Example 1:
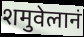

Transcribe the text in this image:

शमुवेलानं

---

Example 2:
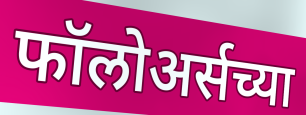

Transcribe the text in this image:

फॉलोअर्सच्या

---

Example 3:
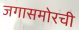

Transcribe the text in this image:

जगासमोरची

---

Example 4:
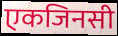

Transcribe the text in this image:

एकजिनसी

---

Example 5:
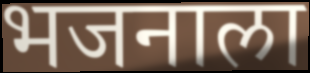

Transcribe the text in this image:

भजनाला